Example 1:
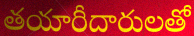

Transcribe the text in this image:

తయారీదారులతో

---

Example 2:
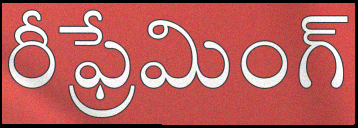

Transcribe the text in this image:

రీఫ్రేమింగ్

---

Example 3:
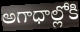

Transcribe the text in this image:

అగాధాల్లోకి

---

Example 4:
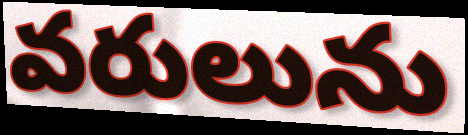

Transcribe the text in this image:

వరులును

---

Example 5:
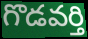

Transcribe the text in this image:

గొడవర్తి